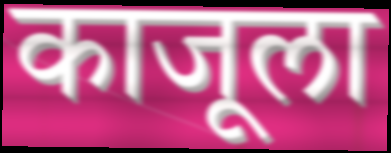
काजूला